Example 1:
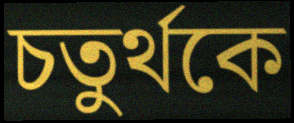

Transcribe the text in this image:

চতুর্থকে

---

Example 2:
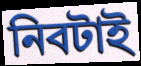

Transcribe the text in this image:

নিবটাই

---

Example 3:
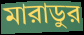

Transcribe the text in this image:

মারাডুর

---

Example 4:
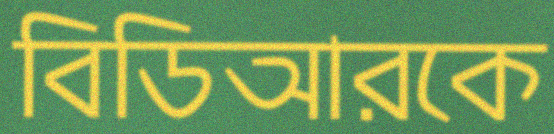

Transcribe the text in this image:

বিডিআরকে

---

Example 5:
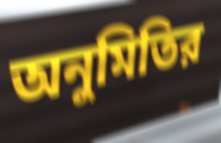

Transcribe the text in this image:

অনুমিতির